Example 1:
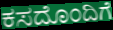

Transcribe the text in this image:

ಕಸದೊಂದಿಗೆ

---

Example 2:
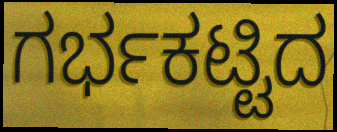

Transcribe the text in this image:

ಗರ್ಭಕಟ್ಟಿದ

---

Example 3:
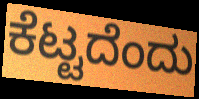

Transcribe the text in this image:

ಕೆಟ್ಟದೆಂದು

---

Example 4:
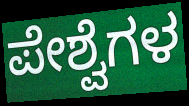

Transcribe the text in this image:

ಪೇಶ್ವೆಗಳ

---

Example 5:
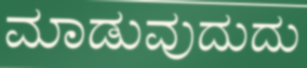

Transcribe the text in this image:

ಮಾಡುವುದುದು